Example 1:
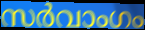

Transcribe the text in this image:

സർവാംഗം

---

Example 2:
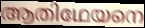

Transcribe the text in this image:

ആതിഥേയനെ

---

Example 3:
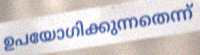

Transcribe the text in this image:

ഉപയോഗിക്കുന്നതെന്ന്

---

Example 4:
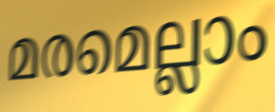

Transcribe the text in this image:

മരമെല്ലാം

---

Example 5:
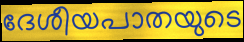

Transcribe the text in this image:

ദേശീയപാതയുടെ